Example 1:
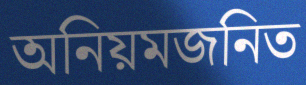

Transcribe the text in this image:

অনিয়মজনিত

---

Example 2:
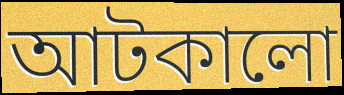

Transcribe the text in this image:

আটকালো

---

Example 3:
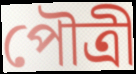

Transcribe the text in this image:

পৌত্রী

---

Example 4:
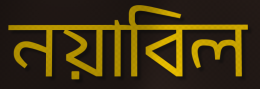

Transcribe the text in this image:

নয়াবিল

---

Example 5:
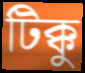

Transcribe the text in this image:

টিক্কু